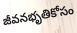
జీవనభృతికోసం